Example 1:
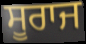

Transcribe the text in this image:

ਸੂਰਾਜ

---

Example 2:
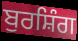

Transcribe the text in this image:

ਬੁਰਸ਼ਿੰਗ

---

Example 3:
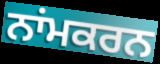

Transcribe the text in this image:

ਨਾਂਮਕਰਨ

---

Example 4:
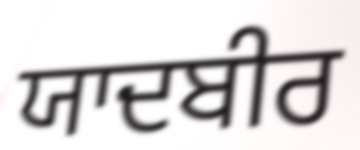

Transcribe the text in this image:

ਯਾਦਬੀਰ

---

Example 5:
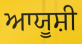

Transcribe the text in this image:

ਆਯੂਸ਼ੀ